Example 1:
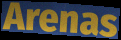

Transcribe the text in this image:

Arenas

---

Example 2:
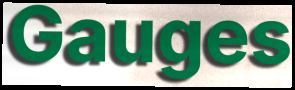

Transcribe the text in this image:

Gauges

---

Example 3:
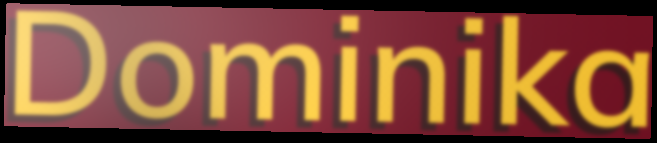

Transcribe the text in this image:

Dominika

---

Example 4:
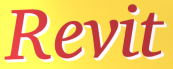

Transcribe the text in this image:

Revit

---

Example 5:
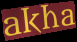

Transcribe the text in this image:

akha